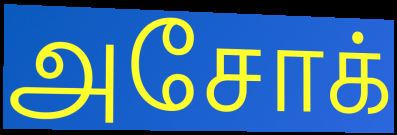
அசோக்